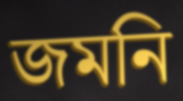
জমনি